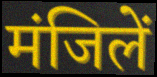
मंजिलें